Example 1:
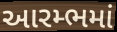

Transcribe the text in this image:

આરમ્ભમાં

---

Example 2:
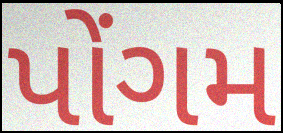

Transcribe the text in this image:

પોંગમ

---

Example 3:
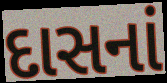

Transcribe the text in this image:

દાસનાં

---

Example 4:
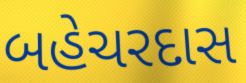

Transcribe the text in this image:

બહેચરદાસ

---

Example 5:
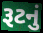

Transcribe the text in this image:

રૂટનું